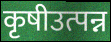
कृषीउत्पन्न